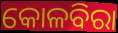
କୋଳବିରା